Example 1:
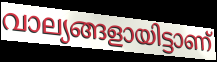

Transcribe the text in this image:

വാല്യങ്ങളായിട്ടാണ്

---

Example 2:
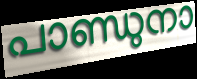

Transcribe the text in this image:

പാണ്ഡുനാ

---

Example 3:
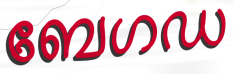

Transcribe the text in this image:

ബേഗഡ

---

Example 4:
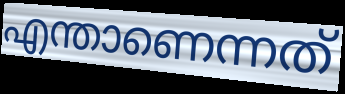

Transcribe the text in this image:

എന്താണെന്നത്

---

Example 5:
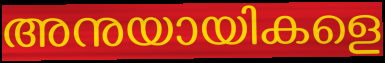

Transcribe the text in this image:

അനുയായികളെ